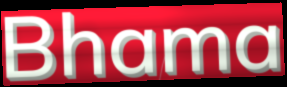
Bhama